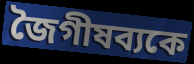
জৈগীষব্যকে